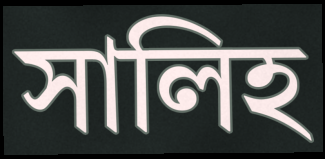
সালিহ